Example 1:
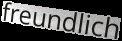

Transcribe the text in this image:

freundlich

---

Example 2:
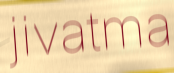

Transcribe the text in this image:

jivatma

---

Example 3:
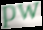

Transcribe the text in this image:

pw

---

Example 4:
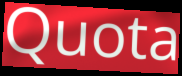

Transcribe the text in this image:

Quota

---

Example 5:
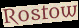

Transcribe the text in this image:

Rostow